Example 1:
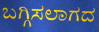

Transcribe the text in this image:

ಬಗ್ಗಿಸಲಾಗದ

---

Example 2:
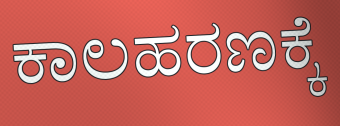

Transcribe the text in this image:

ಕಾಲಹರಣಕ್ಕೆ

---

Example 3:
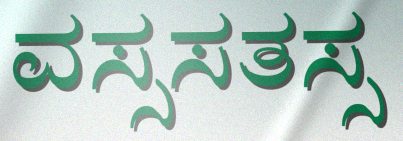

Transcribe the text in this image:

ವಸ್ಸಸತಸ್ಸ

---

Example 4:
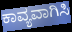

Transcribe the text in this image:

ಕಾವ್ಯವಾಗಿಸಿ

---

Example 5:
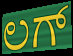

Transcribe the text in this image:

ಲಗ್